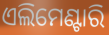
ଏଲିମେଣ୍ଟାରି